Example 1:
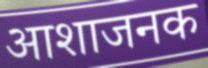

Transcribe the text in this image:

आशाजनक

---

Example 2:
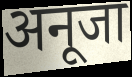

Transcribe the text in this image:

अनूजा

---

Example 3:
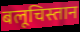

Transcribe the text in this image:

बलूचिस्‍तान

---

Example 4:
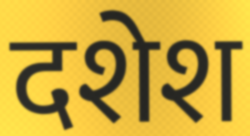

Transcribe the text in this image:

दशेश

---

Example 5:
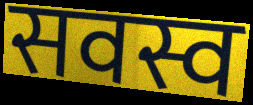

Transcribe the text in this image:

सवस्व